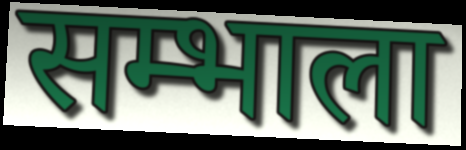
सम्भाला